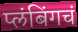
प्लंबिंगचं